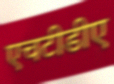
एचटीडीए